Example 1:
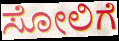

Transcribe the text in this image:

ಸೋಲಿಗೆ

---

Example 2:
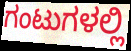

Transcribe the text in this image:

ಗಂಟುಗಳಲ್ಲಿ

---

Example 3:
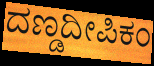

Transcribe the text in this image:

ದಣ್ಡದೀಪಿಕಂ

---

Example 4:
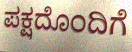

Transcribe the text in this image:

ಪಕ್ಷದೊಂದಿಗೆ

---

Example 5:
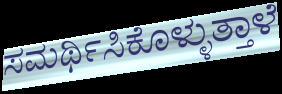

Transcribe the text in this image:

ಸಮರ್ಥಿಸಿಕೊಳ್ಳುತ್ತಾಳೆ